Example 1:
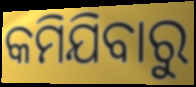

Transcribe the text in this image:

କମିଯିବାରୁ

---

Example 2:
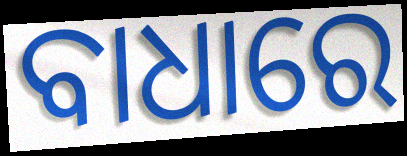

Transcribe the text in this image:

ବାଧାରେ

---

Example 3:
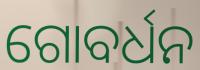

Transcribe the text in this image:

ଗୋବର୍ଧନ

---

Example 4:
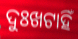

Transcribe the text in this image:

ଦୁଃଖଟାହିଁ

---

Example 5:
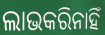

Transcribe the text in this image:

ଲାଭକରିନାହିଁ